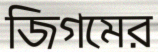
জিগমের